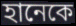
হানেকে